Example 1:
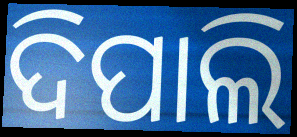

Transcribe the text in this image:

ଦିପାଲି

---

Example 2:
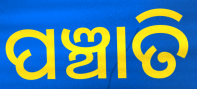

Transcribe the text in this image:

ପଞ୍ଚାତି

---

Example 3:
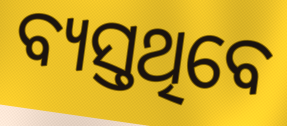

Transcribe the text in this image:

ବ୍ୟସ୍ତଥିବେ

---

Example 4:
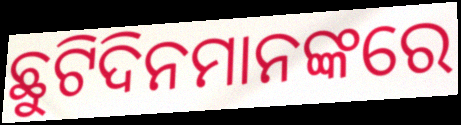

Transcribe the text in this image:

ଛୁଟିଦିନମାନଙ୍କରେ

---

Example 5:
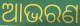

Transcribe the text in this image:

ଆଭରଣ